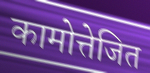
कामोत्तेजित